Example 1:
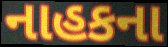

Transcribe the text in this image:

નાહકના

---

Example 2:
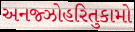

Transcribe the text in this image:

અનજ્ઝોહરિતુકામો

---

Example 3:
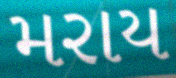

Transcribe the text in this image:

મરાય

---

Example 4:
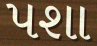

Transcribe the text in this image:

પશા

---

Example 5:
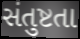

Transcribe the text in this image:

સંતુષ્ટતા